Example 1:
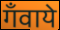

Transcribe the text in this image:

गँवाये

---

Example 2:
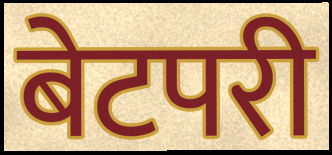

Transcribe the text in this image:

बेटपरी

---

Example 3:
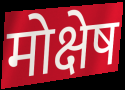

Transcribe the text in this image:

मोक्षेष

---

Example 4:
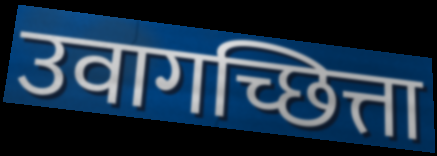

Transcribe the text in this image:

उवागच्छित्ता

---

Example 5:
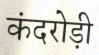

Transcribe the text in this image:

कंदरोड़ी